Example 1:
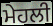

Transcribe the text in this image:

ਮੇਹਲੀ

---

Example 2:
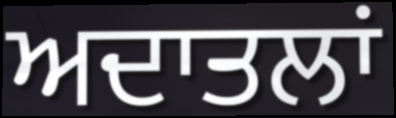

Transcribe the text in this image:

ਅਦਾਤਲਾਂ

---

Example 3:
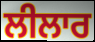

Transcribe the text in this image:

ਲੀਲਾਰ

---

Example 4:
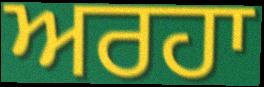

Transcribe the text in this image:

ਅਰਹਾ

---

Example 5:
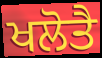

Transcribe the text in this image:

ਖਲੋਤੈ